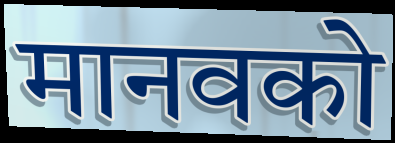
मानवको